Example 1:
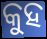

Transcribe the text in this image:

କୁହ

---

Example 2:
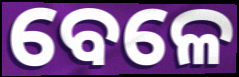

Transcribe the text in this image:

ବେଳେ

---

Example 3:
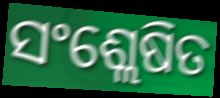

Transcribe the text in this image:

ସଂଶ୍ଲେଷିତ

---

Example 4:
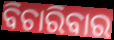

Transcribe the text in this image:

ବିଚାରିବାର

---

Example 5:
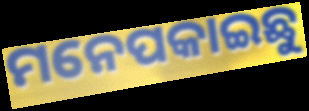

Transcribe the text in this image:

ମନେପକାଇଛୁ